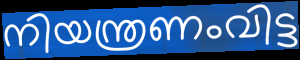
നിയന്ത്രണംവിട്ട